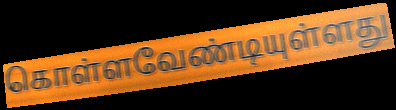
கொள்ளவேண்டியுள்ளது